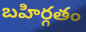
బహిర్గతం